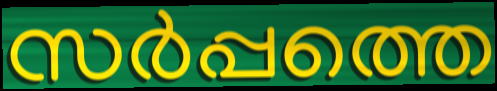
സർപ്പത്തെ